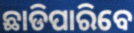
ଛାଡିପାରିବେ